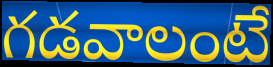
గడవాలంటే